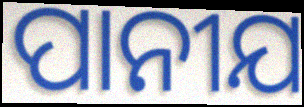
ପାନୀଯ